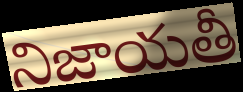
నిజాయతీ